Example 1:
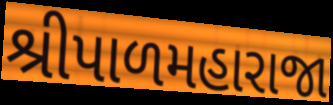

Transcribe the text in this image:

શ્રીપાળમહારાજા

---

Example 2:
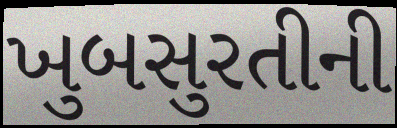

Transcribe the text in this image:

ખુબસુરતીની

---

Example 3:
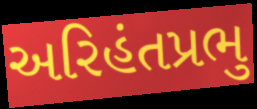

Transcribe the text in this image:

અરિહંતપ્રભુ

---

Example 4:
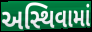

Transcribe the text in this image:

અસ્થિવામાં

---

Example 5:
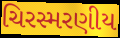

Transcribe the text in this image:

ચિરસ્મરણીય